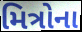
મિત્રોના